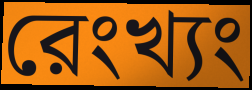
রেংখ্যং